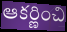
ఆకర్ణించి